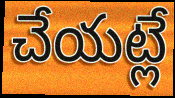
చేయట్లే